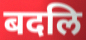
बदलि